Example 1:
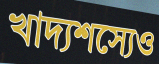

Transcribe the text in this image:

খাদ্যশস্যেও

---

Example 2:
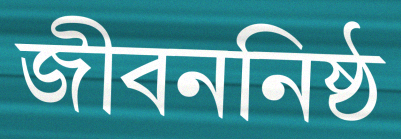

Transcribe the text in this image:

জীবননিষ্ঠ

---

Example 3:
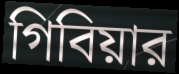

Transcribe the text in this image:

গিবিয়ার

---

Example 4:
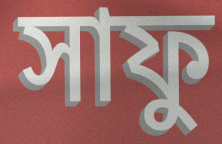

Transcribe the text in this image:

সাফু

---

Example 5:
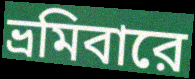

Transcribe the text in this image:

ভ্রমিবারে